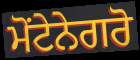
ਮੋਂਟੇਨੇਗਰੋ